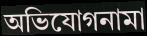
অভিযোগনামা